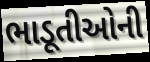
ભાડૂતીઓની